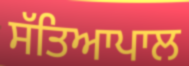
ਸੱਤਿਆਪਾਲ